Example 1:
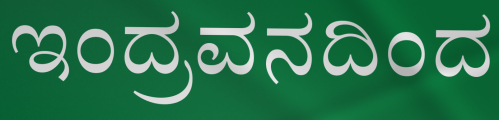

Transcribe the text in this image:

ಇಂದ್ರವನದಿಂದ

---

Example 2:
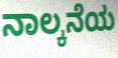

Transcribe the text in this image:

ನಾಲ್ಕನೆಯ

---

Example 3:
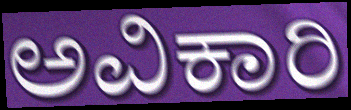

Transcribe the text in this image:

ಅವಿಕಾರಿ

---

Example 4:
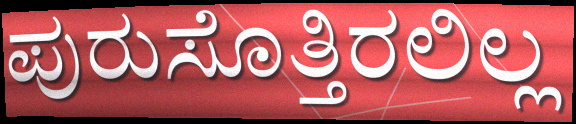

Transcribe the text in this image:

ಪುರುಸೊತ್ತಿರಲಿಲ್ಲ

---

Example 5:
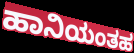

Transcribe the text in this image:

ಹಾನಿಯಂತಹ